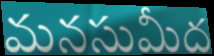
మనసుమీద